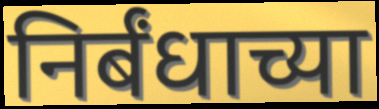
निर्बंधाच्या